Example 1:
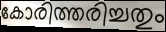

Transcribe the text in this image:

കോരിത്തരിച്ചതും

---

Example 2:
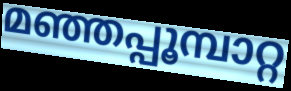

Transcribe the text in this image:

മഞ്ഞപ്പൂമ്പാറ്റ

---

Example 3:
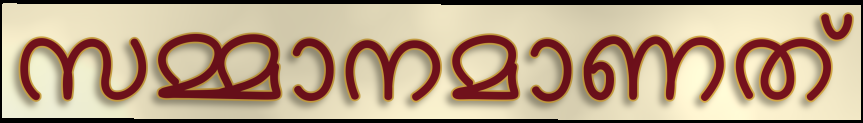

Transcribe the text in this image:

സമ്മാനമാണത്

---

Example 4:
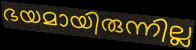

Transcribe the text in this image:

ഭയമായിരുന്നില്ല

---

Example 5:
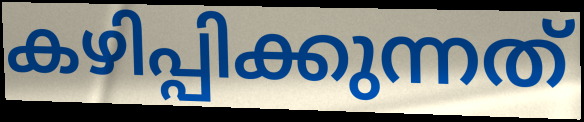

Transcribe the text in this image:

കഴിപ്പിക്കുന്നത്